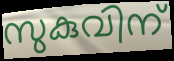
സുകുവിന്